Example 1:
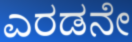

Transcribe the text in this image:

ಎರಡನೇ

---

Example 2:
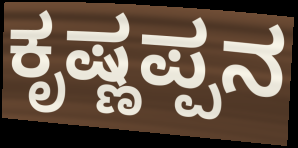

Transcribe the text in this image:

ಕೃಷ್ಣಪ್ಪನ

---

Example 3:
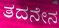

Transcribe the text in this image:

ತದನೇನ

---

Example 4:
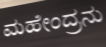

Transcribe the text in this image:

ಮಹೇಂದ್ರನು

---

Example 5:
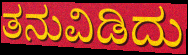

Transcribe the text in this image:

ತನುವಿಡಿದು